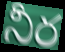
నీర